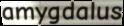
amygdalus